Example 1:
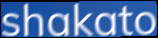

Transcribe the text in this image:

shakato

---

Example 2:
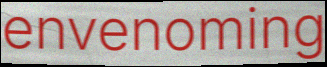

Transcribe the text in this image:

envenoming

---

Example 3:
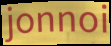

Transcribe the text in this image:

jonnoi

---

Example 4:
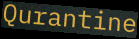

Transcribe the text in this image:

Qurantine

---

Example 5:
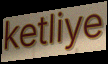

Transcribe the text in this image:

ketliye